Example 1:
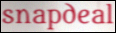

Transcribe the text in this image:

snapdeal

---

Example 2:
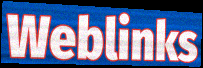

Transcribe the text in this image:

Weblinks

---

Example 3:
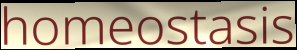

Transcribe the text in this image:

homeostasis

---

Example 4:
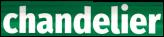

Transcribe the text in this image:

chandelier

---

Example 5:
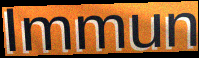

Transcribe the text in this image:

Immun